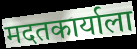
मदतकार्याला